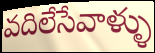
వదిలేసేవాళ్ళు